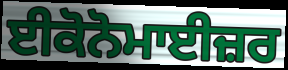
ਈਕੋਨੋਮਾਈਜ਼ਰ